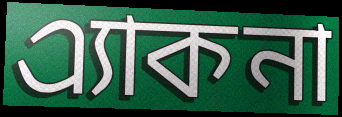
এ্যাকনা